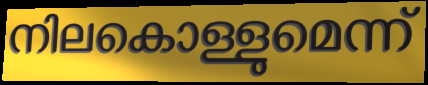
നിലകൊള്ളുമെന്ന്